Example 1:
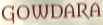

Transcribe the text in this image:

GOWDARA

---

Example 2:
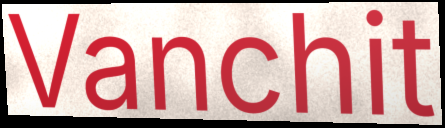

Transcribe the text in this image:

Vanchit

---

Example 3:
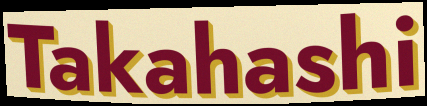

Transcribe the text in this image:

Takahashi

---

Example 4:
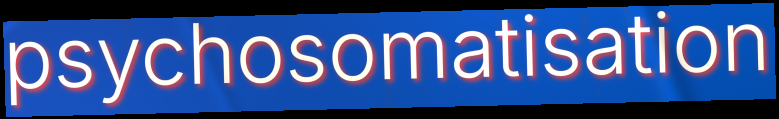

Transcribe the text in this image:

psychosomatisation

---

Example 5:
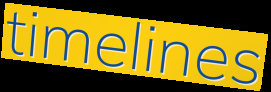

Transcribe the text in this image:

timelines